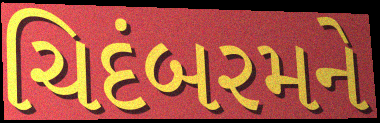
ચિદંબરમને